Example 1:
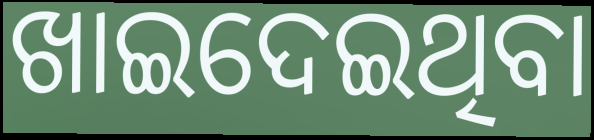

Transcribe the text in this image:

ଖାଇଦେଇଥିବା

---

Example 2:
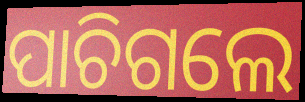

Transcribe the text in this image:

ପାଚିଗଲେ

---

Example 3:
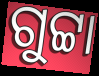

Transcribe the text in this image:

ଗୁଟ୍ଟା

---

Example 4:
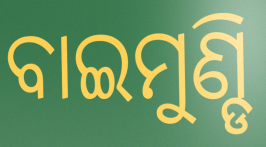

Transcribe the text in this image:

ବାଇମୁଣ୍ଡି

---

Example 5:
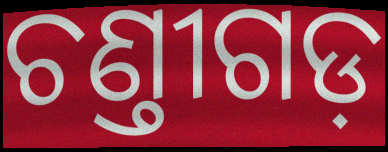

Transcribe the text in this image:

ଚଣ୍ତୀଗଡ଼